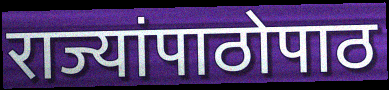
राज्यांपाठोपाठ